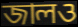
জালও